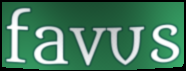
favus